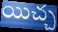
యిచ్చ